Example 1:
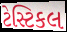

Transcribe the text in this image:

ટેસ્ટિકલ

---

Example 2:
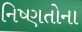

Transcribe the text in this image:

નિષ્ણતોના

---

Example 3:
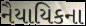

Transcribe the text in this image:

નૈયાયિકના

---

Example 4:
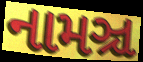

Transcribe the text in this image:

નામઞ્ચ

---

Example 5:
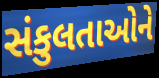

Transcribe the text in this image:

સંકુલતાઓને